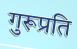
गुरूप्रति